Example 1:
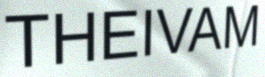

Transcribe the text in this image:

THEIVAM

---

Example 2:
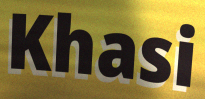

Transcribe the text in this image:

Khasi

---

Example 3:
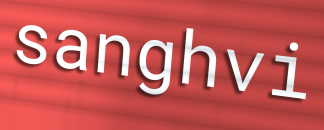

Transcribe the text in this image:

sanghvi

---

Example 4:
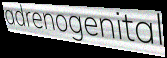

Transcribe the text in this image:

adrenogenital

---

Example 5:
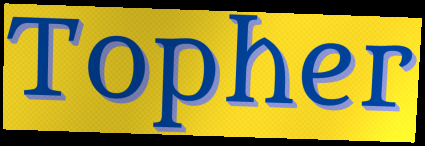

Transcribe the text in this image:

Topher